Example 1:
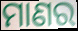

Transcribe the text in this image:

ମାଣର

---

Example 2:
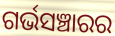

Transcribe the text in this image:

ଗର୍ଭସଞ୍ଚାରର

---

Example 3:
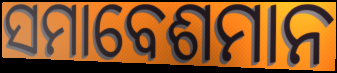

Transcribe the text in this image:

ସମାବେଶମାନ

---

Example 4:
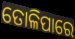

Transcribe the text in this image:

ତୋଳିପାରେ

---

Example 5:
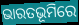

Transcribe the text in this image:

ଭାରତଭୂମିରେ